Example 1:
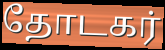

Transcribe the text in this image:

தோடகர்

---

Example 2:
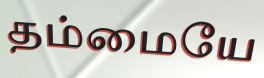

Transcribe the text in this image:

தம்மையே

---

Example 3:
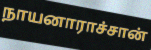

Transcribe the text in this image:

நாயனாராச்சான்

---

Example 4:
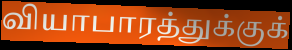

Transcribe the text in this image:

வியாபாரத்துக்குக்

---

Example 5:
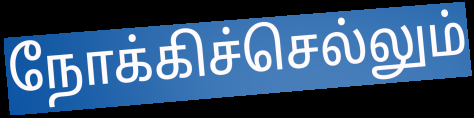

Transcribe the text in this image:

நோக்கிச்செல்லும்